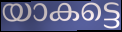
യാകട്ടെ